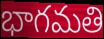
భాగమతి